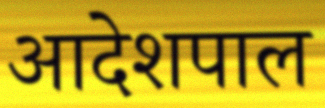
आदेशपाल